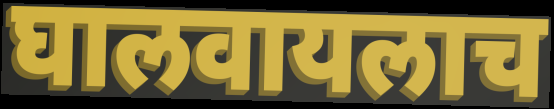
घालवायलाच